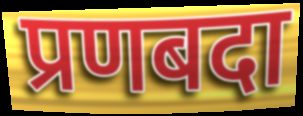
प्रणबदा